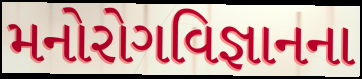
મનોરોગવિજ્ઞાનના